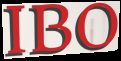
IBO